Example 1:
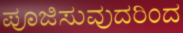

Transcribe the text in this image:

ಪೂಜಿಸುವುದರಿಂದ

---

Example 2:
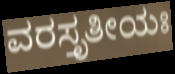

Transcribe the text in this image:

ವರಸ್ತೃತೀಯಃ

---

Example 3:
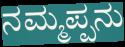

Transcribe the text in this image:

ನಮ್ಮಪ್ಪನು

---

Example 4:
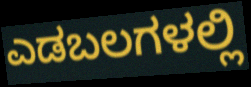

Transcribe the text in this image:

ಎಡಬಲಗಳಲ್ಲಿ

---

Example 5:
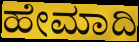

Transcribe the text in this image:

ಹೇಮಾದಿ